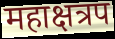
महाक्षत्रप